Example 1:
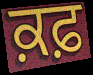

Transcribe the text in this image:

ਕ਼ਫ਼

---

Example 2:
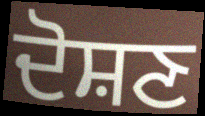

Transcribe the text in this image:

ਦੋਸ਼ਣ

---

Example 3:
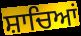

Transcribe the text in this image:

ਸ਼ਾਚਿਆਂ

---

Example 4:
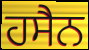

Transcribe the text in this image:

ਹਸੈਨ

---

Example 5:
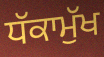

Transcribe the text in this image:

ਧੱਕਾਮੁੱਖ